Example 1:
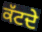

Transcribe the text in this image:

ਕੱਟਦੇ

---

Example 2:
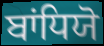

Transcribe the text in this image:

ਬਾਂਧਿਯੋ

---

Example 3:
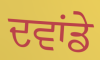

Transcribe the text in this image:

ਦਵਾਂਡੇ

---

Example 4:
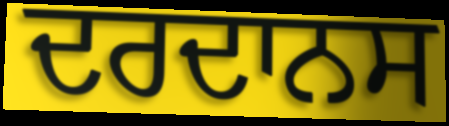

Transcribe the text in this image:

ਦਰਦਾਨਸ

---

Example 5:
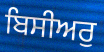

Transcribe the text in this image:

ਬਿਸੀਅਰੁ